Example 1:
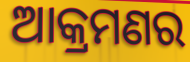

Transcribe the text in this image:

ଆକ୍ରମଣର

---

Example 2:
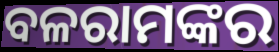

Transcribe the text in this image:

ବଳରାମଙ୍କର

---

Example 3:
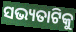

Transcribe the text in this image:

ସଭ୍ୟତାଟିକୁ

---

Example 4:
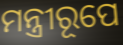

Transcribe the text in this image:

ମନ୍ତ୍ରୀରୂପେ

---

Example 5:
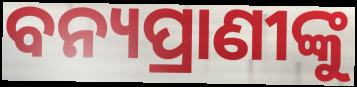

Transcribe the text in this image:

ବନ୍ୟପ୍ରାଣୀଙ୍କୁ